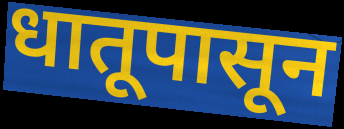
धातूपासून